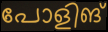
പോളിങ്